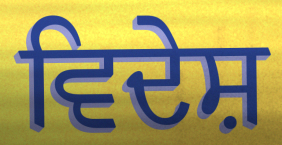
ਵਿਦੇਸ਼